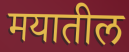
मयातील